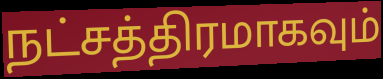
நட்சத்திரமாகவும்